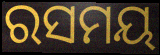
ରସମୟ